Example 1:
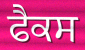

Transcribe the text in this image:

ਫੈਕਸ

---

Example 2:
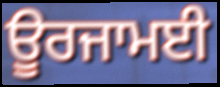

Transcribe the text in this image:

ਊਰਜਾਮਈ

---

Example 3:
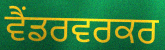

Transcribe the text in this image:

ਵੈਂਡਰਵਰਕਰ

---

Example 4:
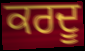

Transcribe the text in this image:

ਕਰਦੂ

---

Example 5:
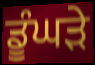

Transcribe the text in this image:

ਡੂੰਘੜੇ